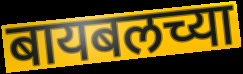
बायबलच्या